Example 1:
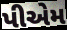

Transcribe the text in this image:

પીએમ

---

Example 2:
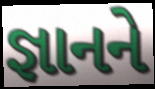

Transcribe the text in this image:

જ્ઞાનને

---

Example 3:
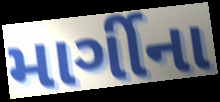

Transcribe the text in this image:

માર્ગીના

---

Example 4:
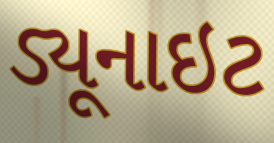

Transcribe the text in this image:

ડ્યૂનાઇટ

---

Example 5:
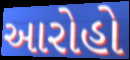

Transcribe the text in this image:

આરોહો